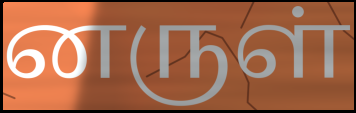
னருள்